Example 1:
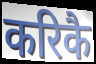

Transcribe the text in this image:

करिकै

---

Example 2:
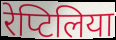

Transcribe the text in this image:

रेप्टिलिया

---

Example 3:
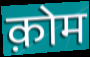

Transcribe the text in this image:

क़ोम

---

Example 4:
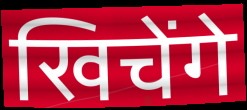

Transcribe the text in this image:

खिचेंगे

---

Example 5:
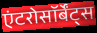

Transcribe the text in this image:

एंटरोसॉर्बेंट्स